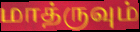
மாத்ருவும்